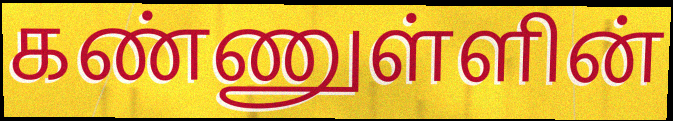
கண்ணுள்ளின்